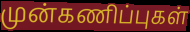
முன்கணிப்புகள்